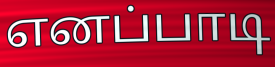
எனப்பாடி